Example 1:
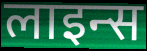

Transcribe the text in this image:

लाइन्स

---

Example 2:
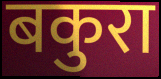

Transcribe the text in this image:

बकुरा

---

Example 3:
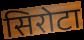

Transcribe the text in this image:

सिरोटा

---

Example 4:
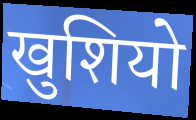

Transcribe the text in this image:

खुशियो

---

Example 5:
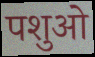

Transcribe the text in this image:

पशुओ